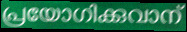
പ്രയോഗിക്കുവാന്